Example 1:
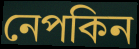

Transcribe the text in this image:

নেপকিন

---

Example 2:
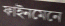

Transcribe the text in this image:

ফাইনমেনে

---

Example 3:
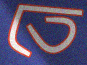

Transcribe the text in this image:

তে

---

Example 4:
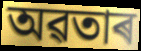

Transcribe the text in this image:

অৱতাৰ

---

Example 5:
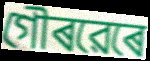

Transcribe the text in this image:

গৌৰৱেৰে